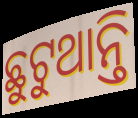
ଛୁଟୁଥାନ୍ତି